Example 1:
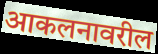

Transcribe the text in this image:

आकलनावरील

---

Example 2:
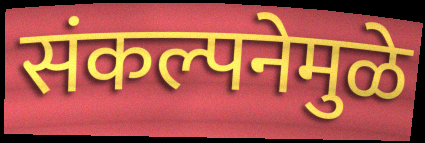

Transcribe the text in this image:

संकल्पनेमुळे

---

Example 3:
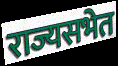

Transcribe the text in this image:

राज्यसभेत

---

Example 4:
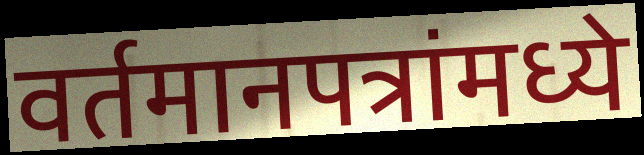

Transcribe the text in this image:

वर्तमानपत्रांमध्ये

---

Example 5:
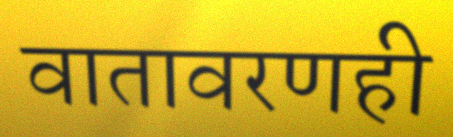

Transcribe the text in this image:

वातावरणही